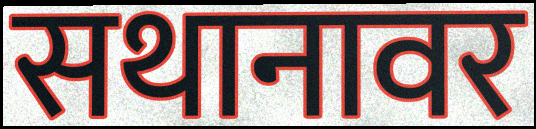
सथानावर